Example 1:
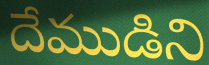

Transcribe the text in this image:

దేముడిని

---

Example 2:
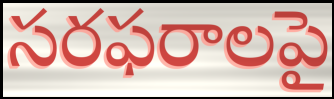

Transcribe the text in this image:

సరఫరాలపై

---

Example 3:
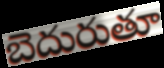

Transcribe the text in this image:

బెదురుతూ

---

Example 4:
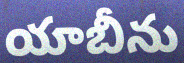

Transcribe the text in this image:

యాబీను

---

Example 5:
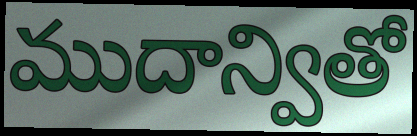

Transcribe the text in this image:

ముదాన్వితో